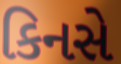
કિનસે